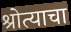
श्रोत्याचा